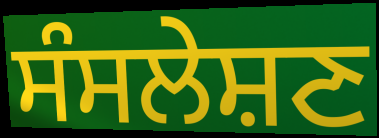
ਸੰਸਲੇਸ਼ਣ